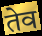
तेव